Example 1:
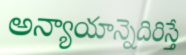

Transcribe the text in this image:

అన్యాయాన్నెదిరిస్తే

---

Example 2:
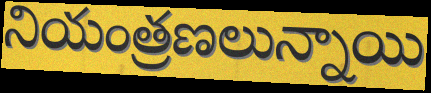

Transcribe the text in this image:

నియంత్రణలున్నాయి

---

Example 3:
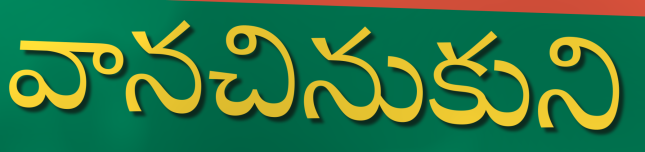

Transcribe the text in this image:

వానచినుకుని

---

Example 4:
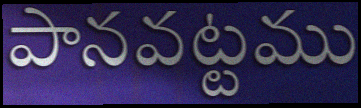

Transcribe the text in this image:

పానవట్టము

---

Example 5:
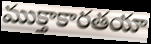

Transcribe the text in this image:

ముక్తాకారతయా